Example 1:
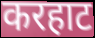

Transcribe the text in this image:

करहाट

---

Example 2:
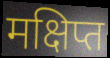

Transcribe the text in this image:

मक्षिप्त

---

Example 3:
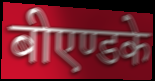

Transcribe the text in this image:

बीएण्डके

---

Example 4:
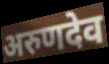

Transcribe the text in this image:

अरुणदेव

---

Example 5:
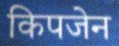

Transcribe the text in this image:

किपजेन